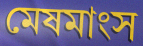
মেষমাংস